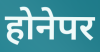
होनेपर